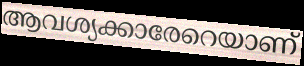
ആവശ്യക്കാരേറെയാണ്